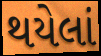
થયેલાં